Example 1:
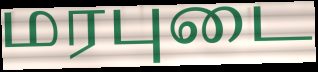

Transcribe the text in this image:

மரபுடை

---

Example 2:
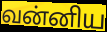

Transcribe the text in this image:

வன்னிய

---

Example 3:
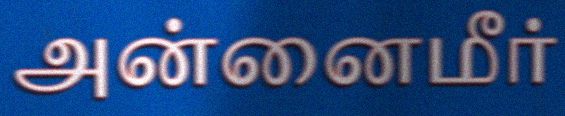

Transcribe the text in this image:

அன்னைமீர்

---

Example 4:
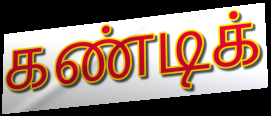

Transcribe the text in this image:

கண்டிக்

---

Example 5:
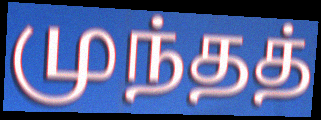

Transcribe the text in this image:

முந்தத்